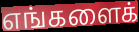
எங்களைக்